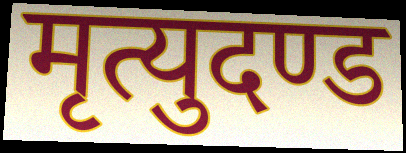
मृत्युदण्ड